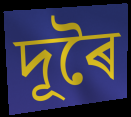
দূৰৈ